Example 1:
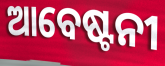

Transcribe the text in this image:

ଆବେଷ୍ଟନୀ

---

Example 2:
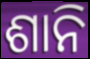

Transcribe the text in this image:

ଶାନି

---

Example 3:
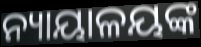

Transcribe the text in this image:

ନ୍ୟାୟାଳୟଙ୍କ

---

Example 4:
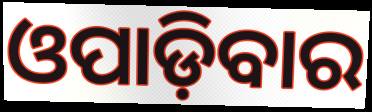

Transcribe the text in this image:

ଓପାଡ଼ିବାର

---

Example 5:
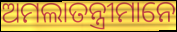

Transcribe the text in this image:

ଅମଲାତନ୍ତ୍ରୀମାନେ